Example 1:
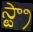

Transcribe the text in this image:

స్ట్రా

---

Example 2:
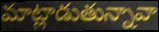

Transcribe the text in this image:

మాట్లాడుతున్నావా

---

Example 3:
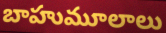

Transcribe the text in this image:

బాహుమూలాలు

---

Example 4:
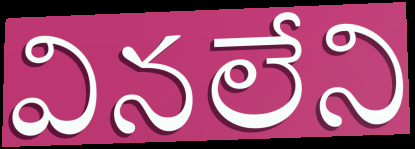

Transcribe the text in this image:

వినలేని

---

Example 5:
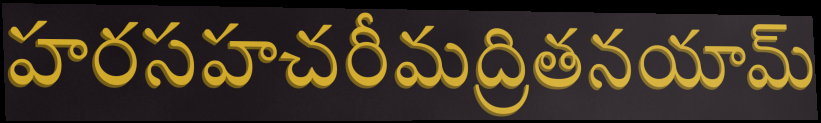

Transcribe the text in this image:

హరసహచరీమద్రితనయామ్